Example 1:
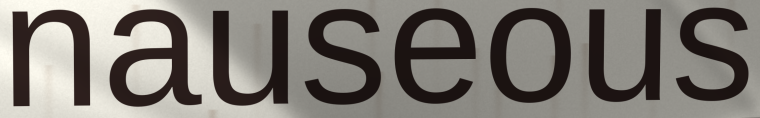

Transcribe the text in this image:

nauseous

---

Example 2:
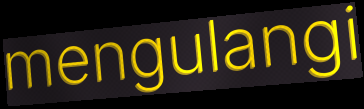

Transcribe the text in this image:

mengulangi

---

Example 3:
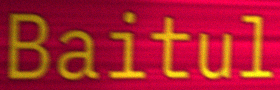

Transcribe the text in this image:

Baitul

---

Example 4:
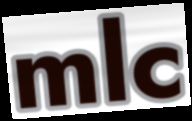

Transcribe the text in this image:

mlc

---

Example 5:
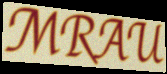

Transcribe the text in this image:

MRAU